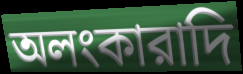
অলংকারাদি